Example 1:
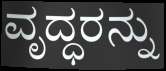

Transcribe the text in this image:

ವೃದ್ಧರನ್ನು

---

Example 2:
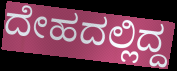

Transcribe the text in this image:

ದೇಹದಲ್ಲಿದ್ದ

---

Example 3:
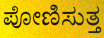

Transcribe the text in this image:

ಪೋಣಿಸುತ್ತ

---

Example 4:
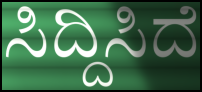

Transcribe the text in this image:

ಸಿದ್ದಿಸಿದೆ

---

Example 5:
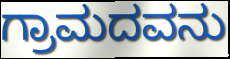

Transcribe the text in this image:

ಗ್ರಾಮದವನು